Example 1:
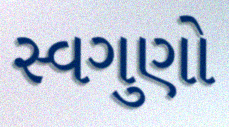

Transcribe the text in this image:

સ્વગુણો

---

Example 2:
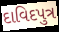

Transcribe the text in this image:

દાવિદપુત્ર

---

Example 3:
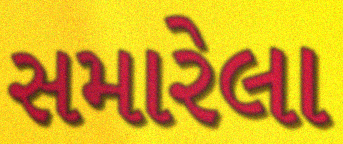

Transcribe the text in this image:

સમારેલા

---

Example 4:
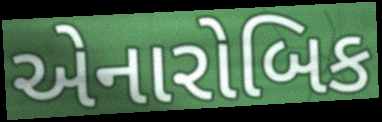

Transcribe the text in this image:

એનારોબિક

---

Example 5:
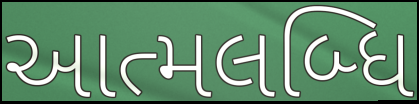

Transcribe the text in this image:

આત્મલબ્ધિ